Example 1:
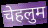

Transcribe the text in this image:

चेहलुम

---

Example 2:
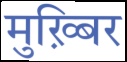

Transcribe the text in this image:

मुख़्बिर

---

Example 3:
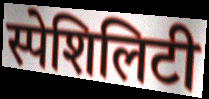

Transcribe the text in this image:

स्पेशिलिटी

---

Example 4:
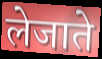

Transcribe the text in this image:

लेजाते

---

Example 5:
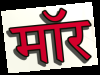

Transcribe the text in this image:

मॉर